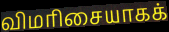
விமரிசையாகக்